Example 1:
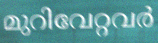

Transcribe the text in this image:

മുറിവേറ്റവർ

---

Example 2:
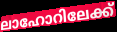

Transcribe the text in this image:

ലാഹോറിലേക്ക്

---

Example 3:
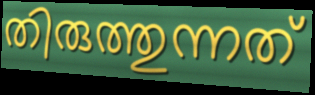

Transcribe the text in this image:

തിരുത്തുന്നത്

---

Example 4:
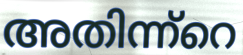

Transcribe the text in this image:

അതിന്ന്റെ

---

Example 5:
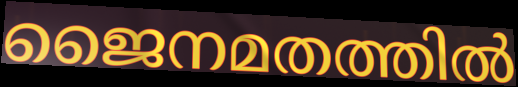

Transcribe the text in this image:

ജൈനമതത്തിൽ